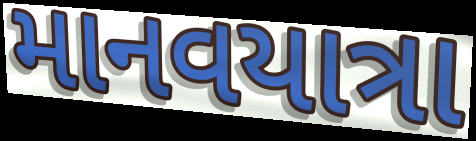
માનવયાત્રા